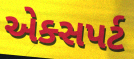
એક્સપર્ટ